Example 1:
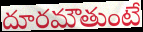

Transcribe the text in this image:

దూరమౌతుంటే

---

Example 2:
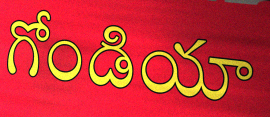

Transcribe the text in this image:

గోండియా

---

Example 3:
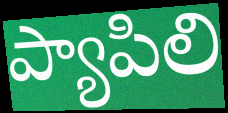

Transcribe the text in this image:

ప్యాపిలి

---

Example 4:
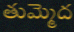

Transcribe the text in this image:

తుమ్మెద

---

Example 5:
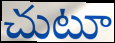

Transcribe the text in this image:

చుటూ